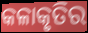
କଳାକୃତିର